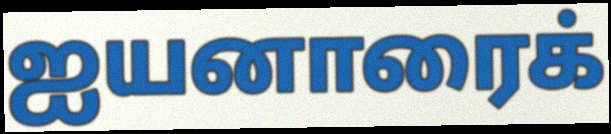
ஐயனாரைக்